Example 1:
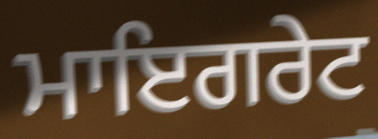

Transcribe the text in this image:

ਮਾਇਗਰੇਟ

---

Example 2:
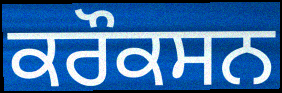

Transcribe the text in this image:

ਕਰੌਕਸਨ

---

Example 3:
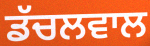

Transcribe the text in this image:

ਡੱਚਲਵਾਲ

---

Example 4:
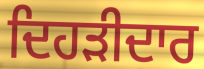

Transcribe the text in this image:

ਦਿਹੜੀਦਾਰ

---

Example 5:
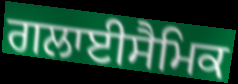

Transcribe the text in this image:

ਗਲਾਈਸੈਮਿਕ